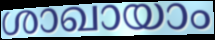
ശാഖായാം